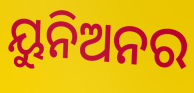
ୟୁନିଅନର